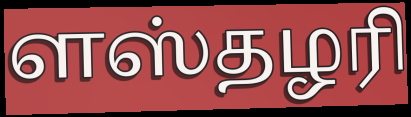
ளஸ்தழரி